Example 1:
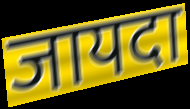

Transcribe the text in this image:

जायदा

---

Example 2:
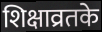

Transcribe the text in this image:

शिक्षाव्रतके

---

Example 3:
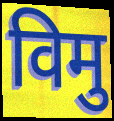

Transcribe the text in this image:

विमु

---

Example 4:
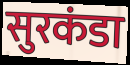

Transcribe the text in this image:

सुरकंडा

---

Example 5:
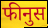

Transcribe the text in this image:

फीनुस